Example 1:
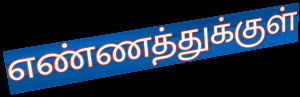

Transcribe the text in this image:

எண்ணத்துக்குள்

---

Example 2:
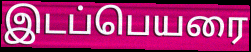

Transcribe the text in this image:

இடப்பெயரை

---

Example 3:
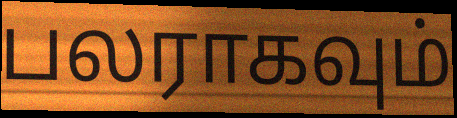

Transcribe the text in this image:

பலராகவும்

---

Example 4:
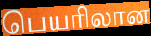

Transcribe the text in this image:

பெயரிலான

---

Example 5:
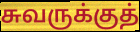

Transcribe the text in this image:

சுவருக்குத்